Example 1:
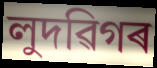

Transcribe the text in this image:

লুদৱিগৰ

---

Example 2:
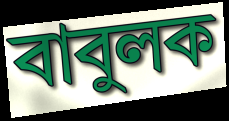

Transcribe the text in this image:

বাবুলক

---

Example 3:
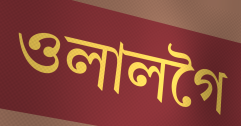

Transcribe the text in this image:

ওলালগৈ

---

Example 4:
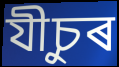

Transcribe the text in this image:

যীচুৰ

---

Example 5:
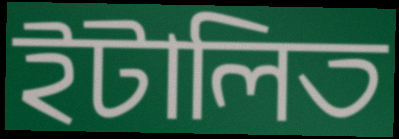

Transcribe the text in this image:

ইটালিত